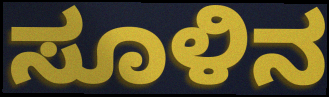
ಸೂಳಿನ